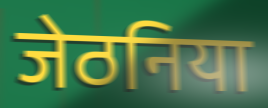
जेठनिया